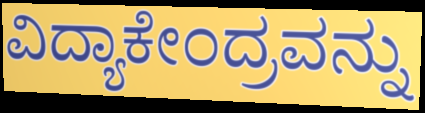
ವಿದ್ಯಾಕೇಂದ್ರವನ್ನು